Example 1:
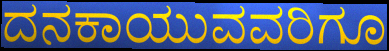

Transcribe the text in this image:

ದನಕಾಯುವವರಿಗೂ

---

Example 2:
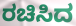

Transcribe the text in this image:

ರಚಿಸಿದ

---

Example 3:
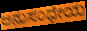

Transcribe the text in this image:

ಅನುಸಂಧೇಯ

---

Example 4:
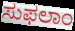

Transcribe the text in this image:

ಸುಫಲಾಂ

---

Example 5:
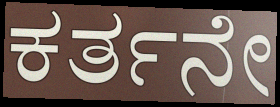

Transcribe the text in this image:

ಕರ್ತನೇ